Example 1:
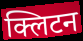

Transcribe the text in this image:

क्लिटन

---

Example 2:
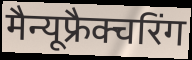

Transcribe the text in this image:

मैन्यूफ्रैक्चरिंग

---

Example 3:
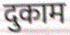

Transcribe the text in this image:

दुकाम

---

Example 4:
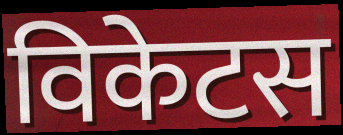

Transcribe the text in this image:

विकेटस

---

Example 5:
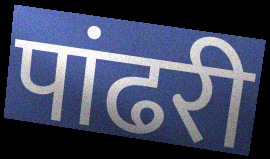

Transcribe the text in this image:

पांढरी